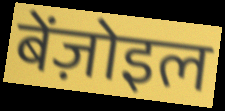
बेंज़ोइल